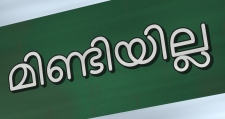
മിണ്ടിയില്ല